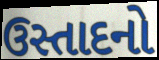
ઉસ્તાદનો